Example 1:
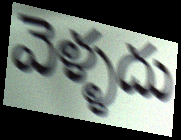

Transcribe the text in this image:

వెళ్ళదు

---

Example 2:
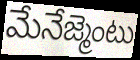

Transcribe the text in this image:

మేనేజ్మెంటు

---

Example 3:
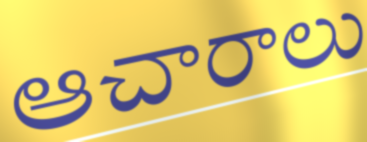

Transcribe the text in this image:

ఆచారాలు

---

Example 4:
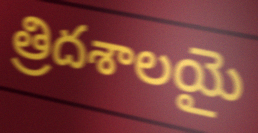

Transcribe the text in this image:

త్రిదశాలయై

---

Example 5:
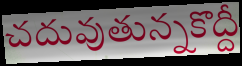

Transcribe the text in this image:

చదువుతున్నకొద్దీ